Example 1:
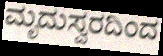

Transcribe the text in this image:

ಮೃದುಸ್ವರದಿಂದ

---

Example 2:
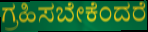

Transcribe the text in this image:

ಗ್ರಹಿಸಬೇಕೆಂದರೆ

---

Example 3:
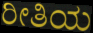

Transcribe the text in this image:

ರೀತಿಯ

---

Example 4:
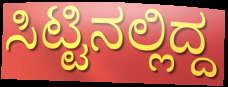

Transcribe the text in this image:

ಸಿಟ್ಟಿನಲ್ಲಿದ್ದ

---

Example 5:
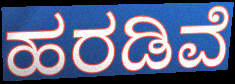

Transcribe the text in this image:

ಹರಡಿವೆ